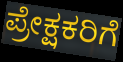
ಪ್ರೇಕ್ಷಕರಿಗೆ